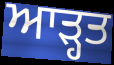
ਆੜ੍ਹਤ